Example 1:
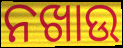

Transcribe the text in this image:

ନଖାଉ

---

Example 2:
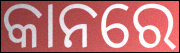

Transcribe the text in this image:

କାନରେ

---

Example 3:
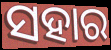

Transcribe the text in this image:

ସହାର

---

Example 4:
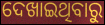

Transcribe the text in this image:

ଦେଖାଇଥିବାରୁ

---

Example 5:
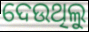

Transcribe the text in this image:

ଦେଉଥିଲୁ